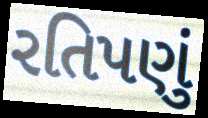
રતિપણું